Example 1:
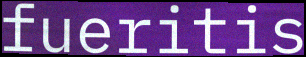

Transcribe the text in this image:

fueritis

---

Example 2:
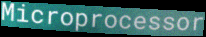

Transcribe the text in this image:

Microprocessor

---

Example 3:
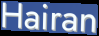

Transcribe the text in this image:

Hairan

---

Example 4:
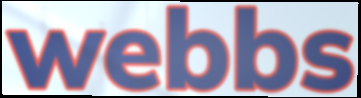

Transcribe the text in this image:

webbs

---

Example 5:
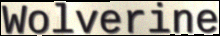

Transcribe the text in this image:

Wolverine